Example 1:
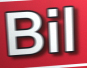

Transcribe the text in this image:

Bil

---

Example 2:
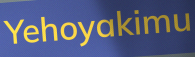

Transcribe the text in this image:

Yehoyakimu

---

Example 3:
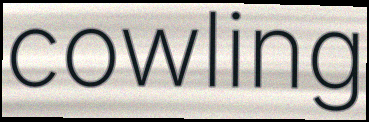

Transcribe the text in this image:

cowling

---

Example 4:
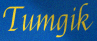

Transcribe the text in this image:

Tumgik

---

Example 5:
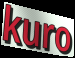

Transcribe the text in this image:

kuro